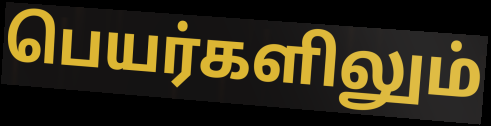
பெயர்களிலும்